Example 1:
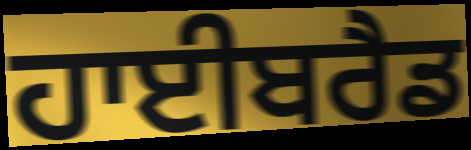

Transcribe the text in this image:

ਹਾਈਬਰੈਡ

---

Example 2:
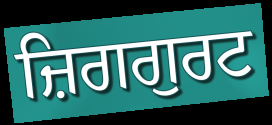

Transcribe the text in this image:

ਜ਼ਿਗਗੁਰਟ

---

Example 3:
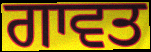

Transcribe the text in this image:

ਗਾਵਤ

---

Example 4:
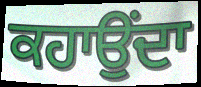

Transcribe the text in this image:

ਕਹਾਉਂਦਾ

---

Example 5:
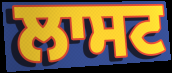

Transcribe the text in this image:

ਲਾਸਟ